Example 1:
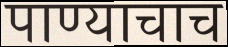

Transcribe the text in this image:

पाण्याचाच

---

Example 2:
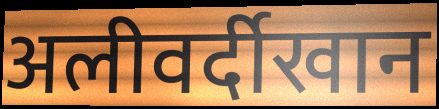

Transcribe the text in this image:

अलीवर्दीखान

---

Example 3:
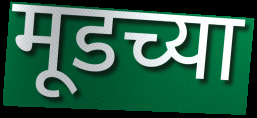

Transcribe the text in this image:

मूडच्या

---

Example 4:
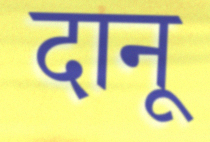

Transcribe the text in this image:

दानू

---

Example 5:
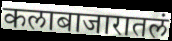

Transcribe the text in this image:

कलाबाजारातलं